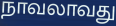
நாவலாவது